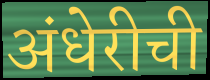
अंधेरीची